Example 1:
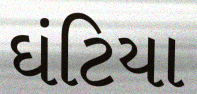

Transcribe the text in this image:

ઘંટિયા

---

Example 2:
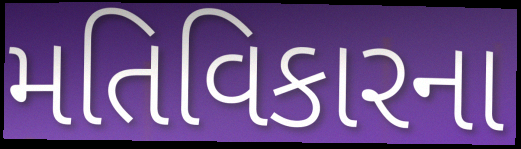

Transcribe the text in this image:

મતિવિકારના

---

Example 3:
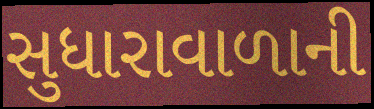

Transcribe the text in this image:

સુધારાવાળાની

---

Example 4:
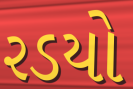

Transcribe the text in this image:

રડયો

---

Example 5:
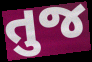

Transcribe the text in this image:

તુજ